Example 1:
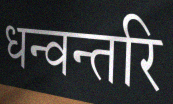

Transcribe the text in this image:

धन्वन्तरि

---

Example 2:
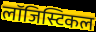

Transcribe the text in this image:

लॉजिस्टिकल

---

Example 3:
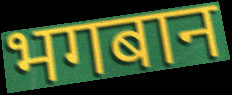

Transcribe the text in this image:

भगबान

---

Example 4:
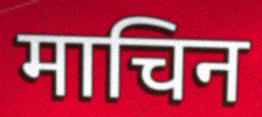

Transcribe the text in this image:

माचिन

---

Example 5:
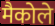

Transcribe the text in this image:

मैकोले